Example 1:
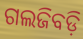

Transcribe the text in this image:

ଗଲଜିବଡ଼ି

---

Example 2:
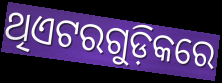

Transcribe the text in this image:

ଥିଏଟରଗୁଡ଼ିକରେ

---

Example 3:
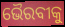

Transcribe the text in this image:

ଭୈରବୀକୁ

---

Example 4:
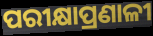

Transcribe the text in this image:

ପରୀକ୍ଷାପ୍ରଣାଳୀ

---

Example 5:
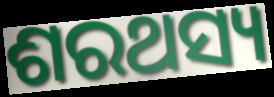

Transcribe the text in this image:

ଶରଥସ୍ୟ